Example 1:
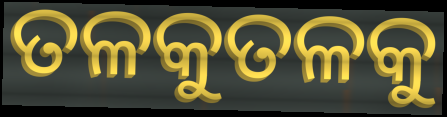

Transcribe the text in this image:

ତଳକୁତଳକୁ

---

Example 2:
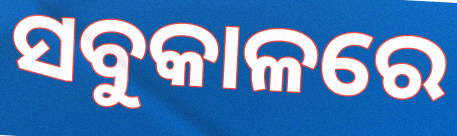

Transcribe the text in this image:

ସବୁକାଳରେ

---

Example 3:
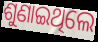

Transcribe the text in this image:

ଶୁଣାଇଥିଲେ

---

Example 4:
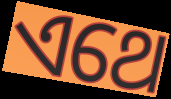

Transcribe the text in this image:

ଏଥେ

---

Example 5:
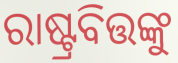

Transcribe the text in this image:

ରାଷ୍ଟ୍ରବିତ୍ତଙ୍କୁ